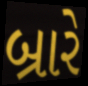
બ્રારે